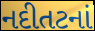
નદીતટનાં